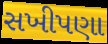
સખીપણા